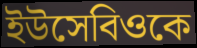
ইউসেবিওকে